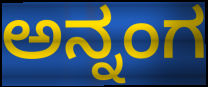
ಅನ್ನಂಗ